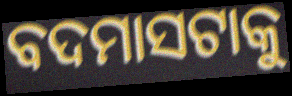
ବଦମାସଟାକୁ